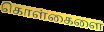
கொள்கைளை